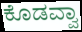
ಕೊಡವ್ವಾ